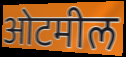
ओटमील